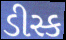
ડીસ્ક